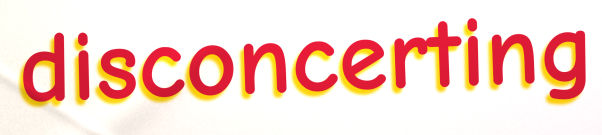
disconcerting